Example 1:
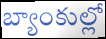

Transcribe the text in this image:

బ్యాంకుల్లో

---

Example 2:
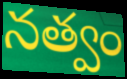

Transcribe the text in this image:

నత్వం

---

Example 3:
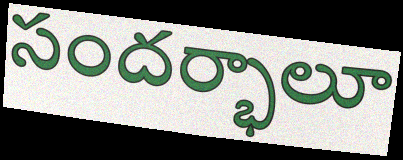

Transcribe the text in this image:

సందర్భాలూ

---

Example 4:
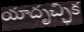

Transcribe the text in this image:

యాదృచ్ఛిక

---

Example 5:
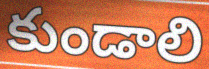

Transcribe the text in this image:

కుండాలి